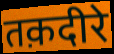
तक़दीरे